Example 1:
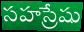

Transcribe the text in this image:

సహస్రేషు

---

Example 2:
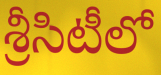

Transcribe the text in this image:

శ్రీసిటీలో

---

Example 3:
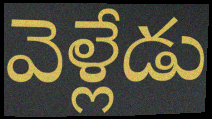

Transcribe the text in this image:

వెళ్లేడు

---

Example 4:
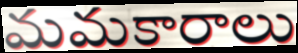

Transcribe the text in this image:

మమకారాలు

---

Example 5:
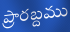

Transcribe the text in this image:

ప్రారబ్దము